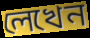
লেখেন